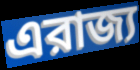
এরাজ্য